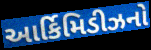
આર્કિમિડીઝનો